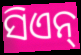
ସିଏନ୍